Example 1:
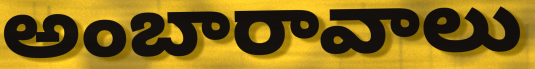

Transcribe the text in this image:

అంబారావాలు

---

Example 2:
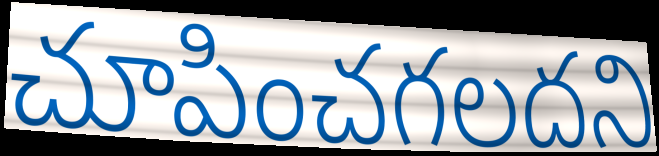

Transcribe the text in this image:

చూపించగలదని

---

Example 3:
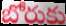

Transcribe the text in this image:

బోరుకు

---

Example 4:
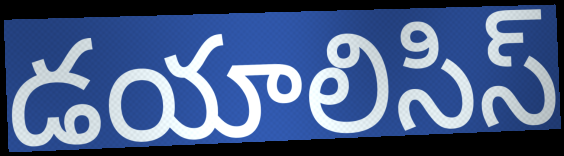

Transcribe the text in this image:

డయాలిసిస్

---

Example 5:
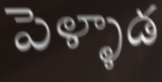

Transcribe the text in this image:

పెళ్ళాడ